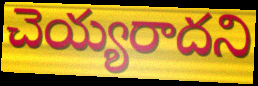
చెయ్యరాదని